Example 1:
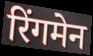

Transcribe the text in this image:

रिंगमेन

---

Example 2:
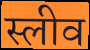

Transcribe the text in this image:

स्लीव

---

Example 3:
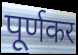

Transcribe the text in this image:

पूर्णकर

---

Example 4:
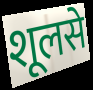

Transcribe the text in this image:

शूलसे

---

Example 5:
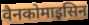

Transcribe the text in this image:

वैनकोमाइसिन